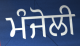
ਮੰਜੋਲੀ